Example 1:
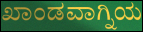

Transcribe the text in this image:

ಖಾಂಡವಾಗ್ನಿಯ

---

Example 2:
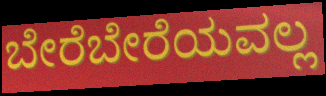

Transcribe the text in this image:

ಬೇರೆಬೇರೆಯವಲ್ಲ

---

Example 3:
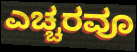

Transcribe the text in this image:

ಎಚ್ಚರವೂ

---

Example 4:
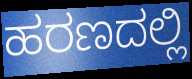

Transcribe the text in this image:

ಹರಣದಲ್ಲಿ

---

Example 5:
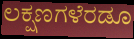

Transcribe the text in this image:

ಲಕ್ಷಣಗಳೆರಡೂ